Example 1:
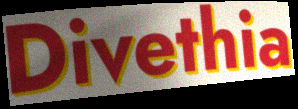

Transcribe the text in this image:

Divethia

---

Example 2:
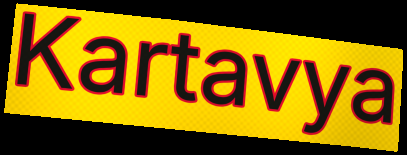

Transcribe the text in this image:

Kartavya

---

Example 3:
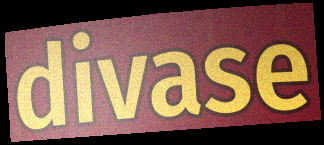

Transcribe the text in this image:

divase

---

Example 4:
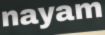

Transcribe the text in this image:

nayam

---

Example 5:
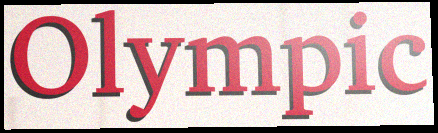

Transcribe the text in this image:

Olympic